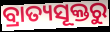
ବ୍ରାତ୍ୟସୂକ୍ତରୁ